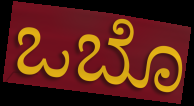
ಒಬೊ